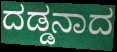
ದಡ್ಡನಾದ